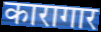
कारागार